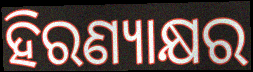
ହିରଣ୍ୟାକ୍ଷର